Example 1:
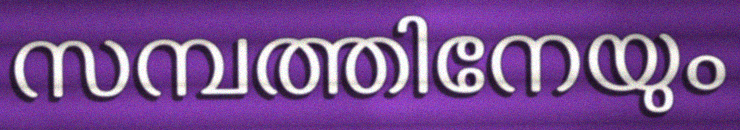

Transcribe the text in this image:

സമ്പത്തിനേയും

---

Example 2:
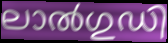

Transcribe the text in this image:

ലാൽഗുഡി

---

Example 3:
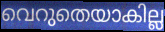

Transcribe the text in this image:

വെറുതെയാകില്ല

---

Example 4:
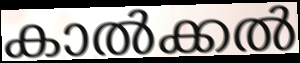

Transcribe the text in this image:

കാൽക്കൽ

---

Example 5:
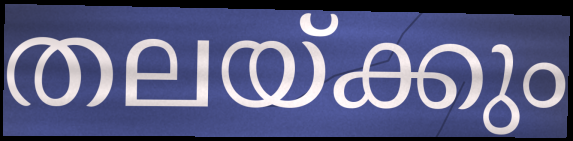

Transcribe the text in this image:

തലയ്ക്കും